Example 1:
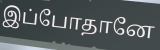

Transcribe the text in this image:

இப்போதானே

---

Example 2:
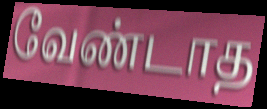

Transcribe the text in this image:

வேண்டாத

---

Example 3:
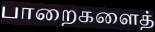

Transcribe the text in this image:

பாறைகளைத்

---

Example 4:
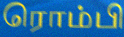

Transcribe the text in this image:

ரொம்பி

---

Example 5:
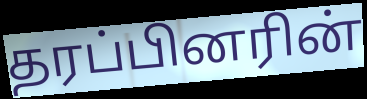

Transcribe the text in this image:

தரப்பினரின்